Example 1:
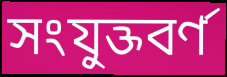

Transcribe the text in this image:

সংযুক্তবর্ণ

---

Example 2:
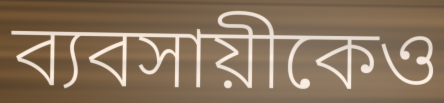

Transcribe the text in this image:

ব্যবসায়ীকেও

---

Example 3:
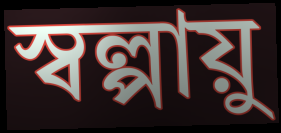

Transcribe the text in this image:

স্বল্পায়ু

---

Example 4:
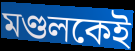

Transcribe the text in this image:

মণ্ডলকেই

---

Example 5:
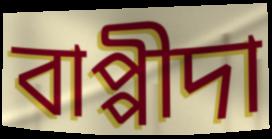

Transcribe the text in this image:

বাপ্পীদা